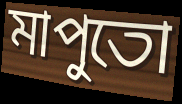
মাপুতো